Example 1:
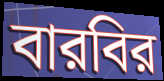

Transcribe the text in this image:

বারবির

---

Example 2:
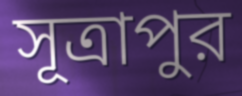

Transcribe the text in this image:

সূত্রাপুর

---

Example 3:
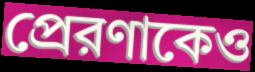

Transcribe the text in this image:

প্রেরণাকেও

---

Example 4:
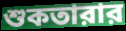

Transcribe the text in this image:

শুকতারার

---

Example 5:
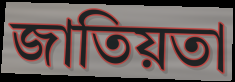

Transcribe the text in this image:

জাতিয়তা